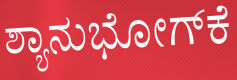
ಶ್ಯಾನುಭೋಗ್‌ಕೆ